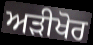
ਅੜੀਖੋਰ